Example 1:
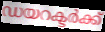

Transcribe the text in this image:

ഡയറക്ടർക്ക്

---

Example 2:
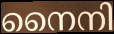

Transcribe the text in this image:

നൈനി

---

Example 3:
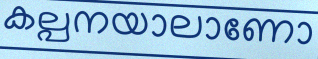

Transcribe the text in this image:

കല്പനയാലാണോ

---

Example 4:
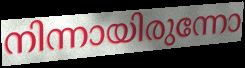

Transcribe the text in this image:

നിന്നായിരുന്നോ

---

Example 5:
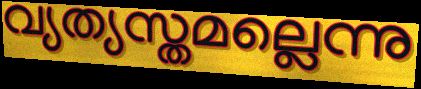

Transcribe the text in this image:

വ്യത്യസ്തമല്ലെന്നു